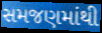
સમજણમાંથી